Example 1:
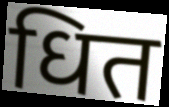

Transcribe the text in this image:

धित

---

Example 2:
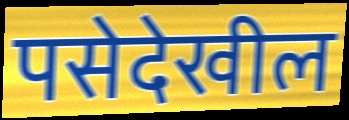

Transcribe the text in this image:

पसेदेखील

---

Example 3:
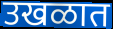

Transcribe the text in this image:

उखळात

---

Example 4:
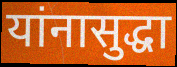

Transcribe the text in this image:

यांनासुद्धा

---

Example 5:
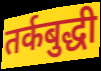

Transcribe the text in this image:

तर्कबुद्धी